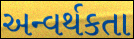
અન્વર્થકતા